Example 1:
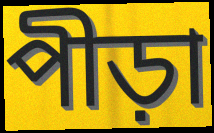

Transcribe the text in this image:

পীড়া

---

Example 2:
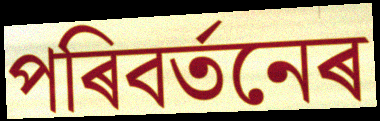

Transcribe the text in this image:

পৰিবৰ্তনেৰ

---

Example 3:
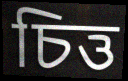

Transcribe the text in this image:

চিত্ত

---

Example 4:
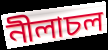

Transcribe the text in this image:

নীলাচল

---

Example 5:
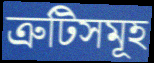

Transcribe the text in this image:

ত্ৰুটিসমূহ